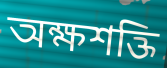
অক্ষশক্তি